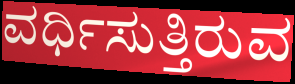
ವರ್ಧಿಸುತ್ತಿರುವ